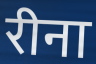
रीना